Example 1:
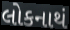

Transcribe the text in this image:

લોકનાથં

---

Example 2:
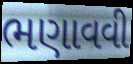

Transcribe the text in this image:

ભણાવવી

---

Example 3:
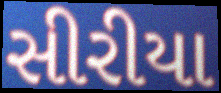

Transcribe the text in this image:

સીરીયા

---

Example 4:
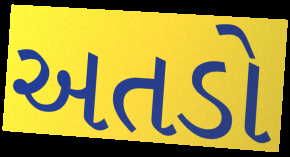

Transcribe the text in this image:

અતડો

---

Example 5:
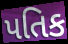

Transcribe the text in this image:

પતિક